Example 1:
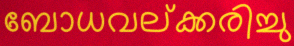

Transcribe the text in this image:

ബോധവല്ക്കരിച്ചു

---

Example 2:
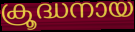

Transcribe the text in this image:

ക്രൂദ്ധനായ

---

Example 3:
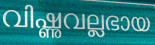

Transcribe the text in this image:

വിഷ്ണുവല്ലഭായ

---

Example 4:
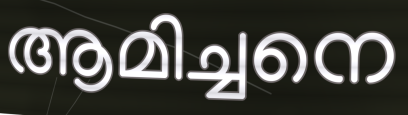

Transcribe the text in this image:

ആമിച്ചനെ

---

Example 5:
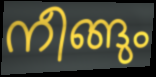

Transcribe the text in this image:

നീങ്ങും